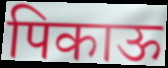
पिकाऊ